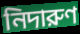
নিদারুণ